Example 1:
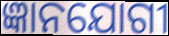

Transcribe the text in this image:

ଜ୍ଞାନଯୋଗୀ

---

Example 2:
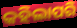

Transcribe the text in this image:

କହିଲାପରି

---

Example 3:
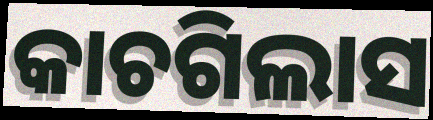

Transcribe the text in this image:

କାଚଗିଲାସ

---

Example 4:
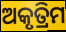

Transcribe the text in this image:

ଅକୃତ୍ରିମ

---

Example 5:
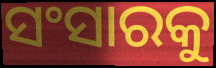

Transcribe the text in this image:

ସଂସାରକୁ